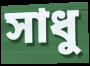
সাধু